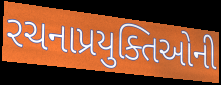
રચનાપ્રયુક્તિઓની